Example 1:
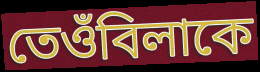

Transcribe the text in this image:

তেওঁবিলাকে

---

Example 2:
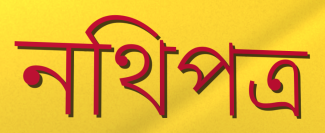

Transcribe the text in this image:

নথিপত্ৰ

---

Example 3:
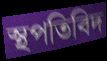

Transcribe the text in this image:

স্থপতিবিদ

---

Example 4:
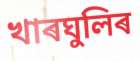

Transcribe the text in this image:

খাৰঘুলিৰ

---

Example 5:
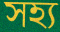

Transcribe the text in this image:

সহ্য